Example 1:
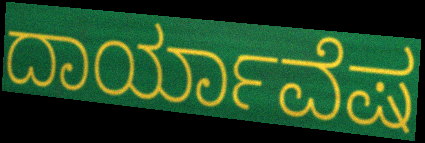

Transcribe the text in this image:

ದಾರ್ಯಾವೆಷ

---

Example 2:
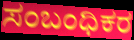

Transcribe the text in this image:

ಸಂಬಂಧಿಕರ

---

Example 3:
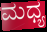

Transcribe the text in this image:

ಮಧ್ಯ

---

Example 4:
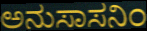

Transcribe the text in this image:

ಅನುಸಾಸನಿಂ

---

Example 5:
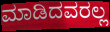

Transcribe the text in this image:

ಮಾಡಿದವರಲ್ಲ